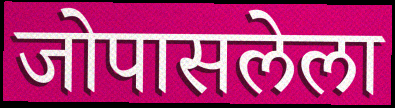
जोपासलेला